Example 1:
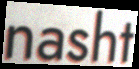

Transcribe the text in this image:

nasht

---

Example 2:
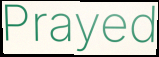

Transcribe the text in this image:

Prayed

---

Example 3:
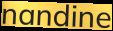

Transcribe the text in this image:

nandine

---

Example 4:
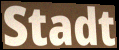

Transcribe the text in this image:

Stadt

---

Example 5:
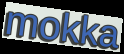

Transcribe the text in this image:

mokka